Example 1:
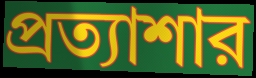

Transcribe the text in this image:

প্রত্যাশার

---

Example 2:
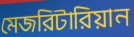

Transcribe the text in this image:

মেজরিটারিয়ান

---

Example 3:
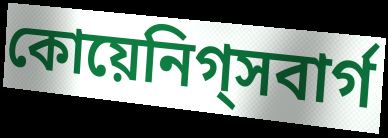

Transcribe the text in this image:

কোয়েনিগ্সবার্গ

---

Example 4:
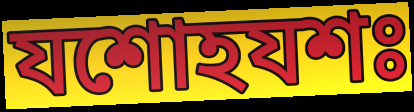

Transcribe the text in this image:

যশোহযশঃ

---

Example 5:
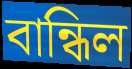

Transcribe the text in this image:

বান্ধিল